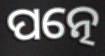
ପତ୍ନେ